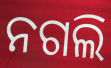
ନଗଲି